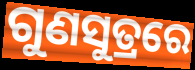
ଗୁଣସୁତ୍ରରେ